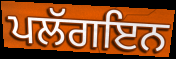
ਪਲੱਗਇਨ